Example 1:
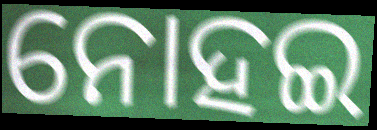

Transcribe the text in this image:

ନୋହଇ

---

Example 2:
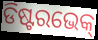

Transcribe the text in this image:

ଡିଷ୍ଟରଭେକ୍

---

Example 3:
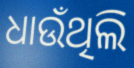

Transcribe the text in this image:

ଧାଉଁଥିଲି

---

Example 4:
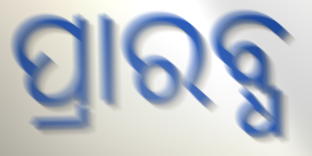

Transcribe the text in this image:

ପ୍ରାରବ୍ଧ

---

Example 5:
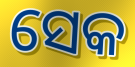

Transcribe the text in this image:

ସେକ